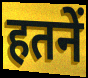
हतनें